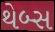
થેબ્સ